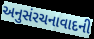
અનુસંરચનાવાદની